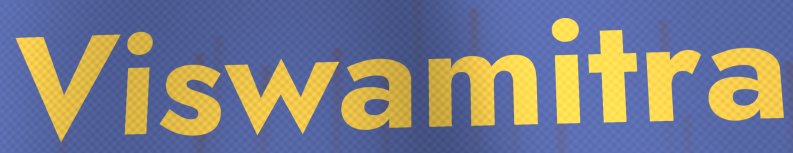
Viswamitra